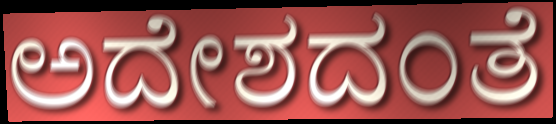
ಅದೇಶದಂತೆ